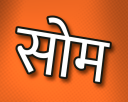
सोम